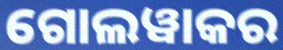
ଗୋଲୱାକର